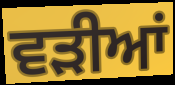
ਵੜੀਆਂ